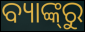
ବ୍ୟାଙ୍କ୍‌ରୁ